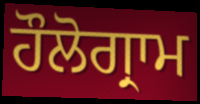
ਹੌਲੋਗ੍ਰਾਮ